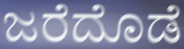
ಜರೆದೊಡೆ